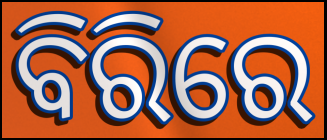
ବିରିରେ